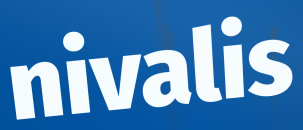
nivalis